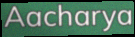
Aacharya